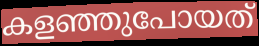
കളഞ്ഞുപോയത്